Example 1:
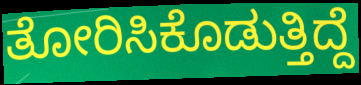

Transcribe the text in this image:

ತೋರಿಸಿಕೊಡುತ್ತಿದ್ದೆ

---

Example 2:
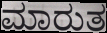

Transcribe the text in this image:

ಮಾರುತ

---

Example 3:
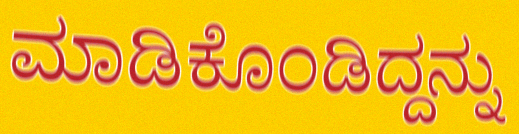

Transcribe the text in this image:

ಮಾಡಿಕೊಂಡಿದ್ದನ್ನು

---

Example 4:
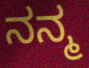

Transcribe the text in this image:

ನನ್ಮ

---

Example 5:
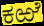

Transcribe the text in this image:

ಕಱೆ